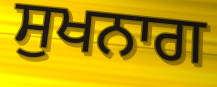
ਸੁਖਨਾਗ